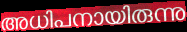
അധിപനായിരുന്നു